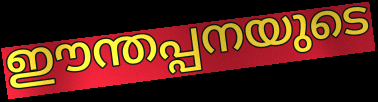
ഈന്തപ്പനയുടെ